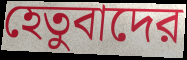
হেতুবাদের